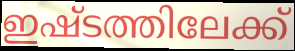
ഇഷ്ടത്തിലേക്ക്